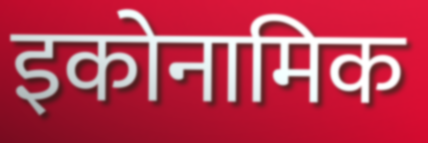
इकोनामिक